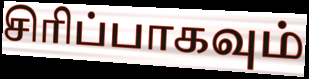
சிரிப்பாகவும்